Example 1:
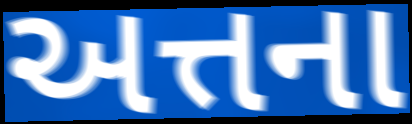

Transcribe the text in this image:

અત્તના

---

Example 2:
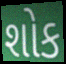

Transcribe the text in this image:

શોક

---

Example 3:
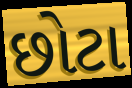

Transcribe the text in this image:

છોટા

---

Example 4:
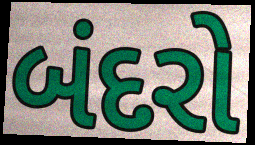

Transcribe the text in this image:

બંદરો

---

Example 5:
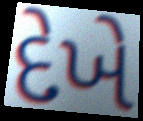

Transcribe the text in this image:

દેખે